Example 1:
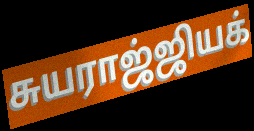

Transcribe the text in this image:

சுயராஜ்ஜியக்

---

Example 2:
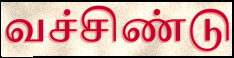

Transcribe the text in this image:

வச்சிண்டு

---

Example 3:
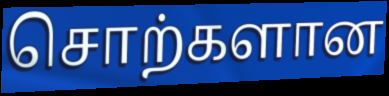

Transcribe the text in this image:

சொற்களான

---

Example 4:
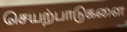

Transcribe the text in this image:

செயற்பாடுகளை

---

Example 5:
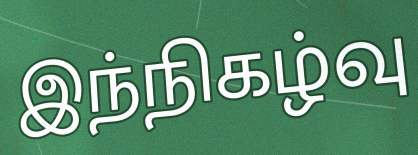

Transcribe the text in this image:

இந்நிகழ்வு